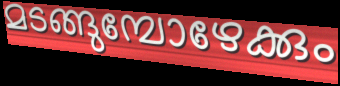
മടങ്ങുമ്പോഴേക്കും